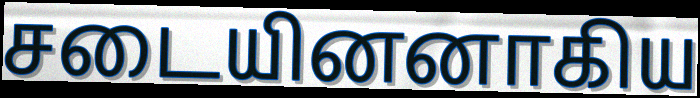
சடையினனாகிய